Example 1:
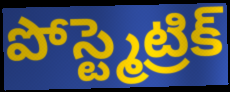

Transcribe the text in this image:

పోస్ట్మెట్రిక్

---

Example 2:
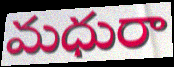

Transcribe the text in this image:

మధురా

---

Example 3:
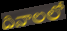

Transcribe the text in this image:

దినాలలో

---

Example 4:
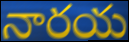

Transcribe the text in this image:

నారయ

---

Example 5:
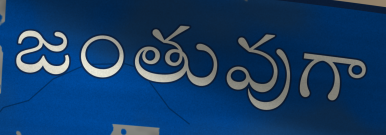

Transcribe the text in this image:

జంతువుగా